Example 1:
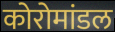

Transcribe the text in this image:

कोरोमांडल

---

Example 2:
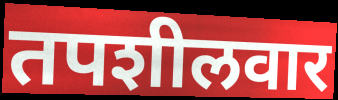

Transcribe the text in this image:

तपशीलवार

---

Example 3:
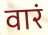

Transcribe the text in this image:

वारं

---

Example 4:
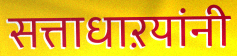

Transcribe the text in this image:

सत्ताधाऱयांनी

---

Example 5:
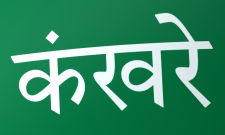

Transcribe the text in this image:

कंखरे